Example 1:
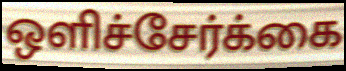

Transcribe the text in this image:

ஒளிச்சேர்க்கை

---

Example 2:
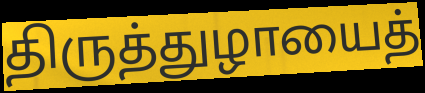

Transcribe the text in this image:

திருத்துழாயைத்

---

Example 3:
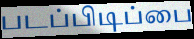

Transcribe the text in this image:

படப்பிடிப்பை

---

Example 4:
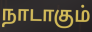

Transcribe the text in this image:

நாடாகும்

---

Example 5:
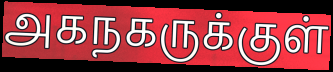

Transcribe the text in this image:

அகநகருக்குள்